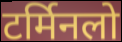
टर्मिनलो